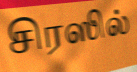
சிரஸில்